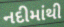
નદીમાંથી